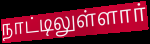
நாட்டிலுள்ளார்